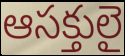
ఆసక్తులై